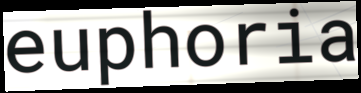
euphoria